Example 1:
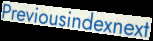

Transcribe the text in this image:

Previousindexnext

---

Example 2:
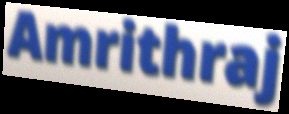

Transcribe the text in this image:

Amrithraj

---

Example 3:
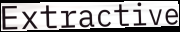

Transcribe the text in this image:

Extractive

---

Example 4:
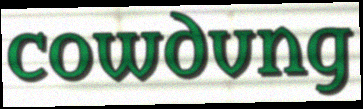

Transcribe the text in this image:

cowdung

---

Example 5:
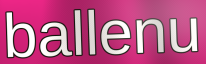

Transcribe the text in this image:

ballenu